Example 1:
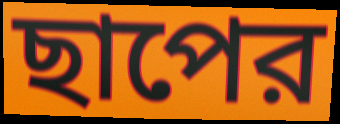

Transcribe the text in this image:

ছাপের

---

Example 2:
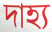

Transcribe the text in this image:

দাহ্য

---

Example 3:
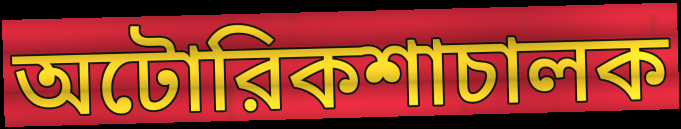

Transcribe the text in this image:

অটোরিকশাচালক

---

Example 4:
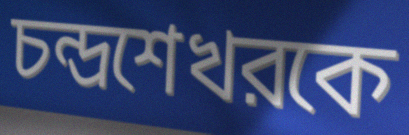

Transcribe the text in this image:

চন্দ্রশেখরকে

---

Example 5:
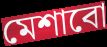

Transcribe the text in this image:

মেশাবো